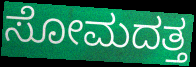
ಸೋಮದತ್ತ